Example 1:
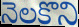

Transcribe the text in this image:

నెలకొని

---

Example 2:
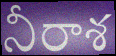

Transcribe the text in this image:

నీరాశ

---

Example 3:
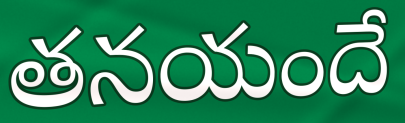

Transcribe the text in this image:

తనయందే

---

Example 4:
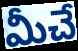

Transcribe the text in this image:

మీచే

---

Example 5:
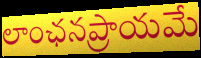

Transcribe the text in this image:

లాంఛనప్రాయమే